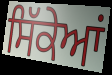
ਸਿੱਕੇਆਂ